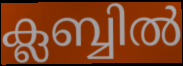
ക്ലബ്ബിൽ